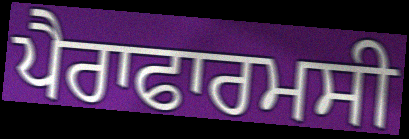
ਪੈਰਾਫਾਰਮਸੀ